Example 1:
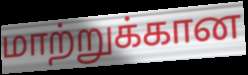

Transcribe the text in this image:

மாற்றுக்கான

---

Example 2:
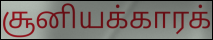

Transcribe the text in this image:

சூனியக்காரக்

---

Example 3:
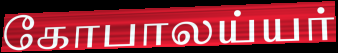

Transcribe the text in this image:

கோபாலய்யர்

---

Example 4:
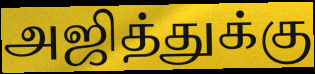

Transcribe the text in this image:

அஜித்துக்கு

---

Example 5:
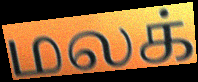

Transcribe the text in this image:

மலக்